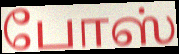
போஸ்